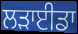
ਲੜਾਈਡਾ